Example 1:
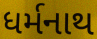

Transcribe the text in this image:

ધર્મનાથ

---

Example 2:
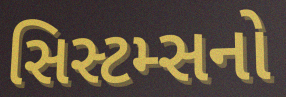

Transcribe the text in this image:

સિસ્ટમ્સનો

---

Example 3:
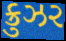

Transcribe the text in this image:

ક્રુઝર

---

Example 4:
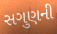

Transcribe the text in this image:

સગુણની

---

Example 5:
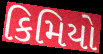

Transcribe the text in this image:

કિમિયો